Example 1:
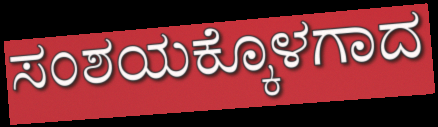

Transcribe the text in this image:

ಸಂಶಯಕ್ಕೊಳಗಾದ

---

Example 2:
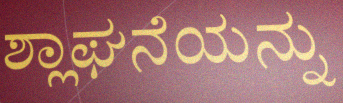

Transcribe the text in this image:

ಶ್ಲಾಘನೆಯನ್ನು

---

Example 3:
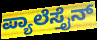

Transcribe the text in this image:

ಪ್ಯಾಲೆಸ್ತೈನ್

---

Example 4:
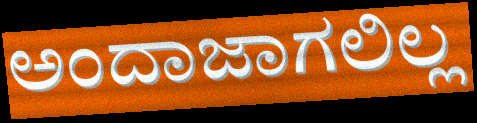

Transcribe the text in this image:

ಅಂದಾಜಾಗಲಿಲ್ಲ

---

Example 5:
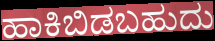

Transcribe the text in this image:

ಹಾಕಿಬಿಡಬಹುದು